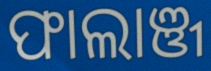
ଫାଲାଞ୍ଜ